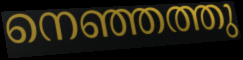
നെഞ്ഞത്തു